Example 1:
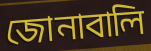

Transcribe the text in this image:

জোনাবালি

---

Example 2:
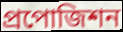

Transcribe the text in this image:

প্রপোজিশন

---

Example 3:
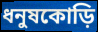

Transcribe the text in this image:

ধনুষকোড়ি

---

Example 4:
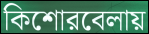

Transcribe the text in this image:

কিশোরবেলায়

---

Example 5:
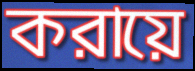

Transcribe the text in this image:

করায়ে